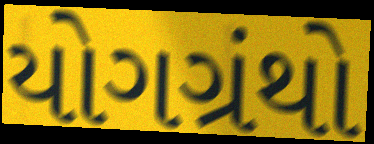
યોગગ્રંથો